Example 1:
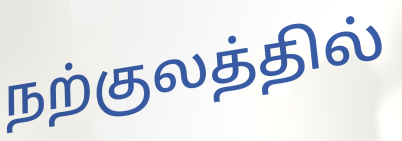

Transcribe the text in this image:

நற்குலத்தில்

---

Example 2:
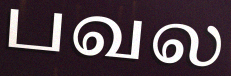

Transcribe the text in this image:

பவல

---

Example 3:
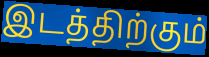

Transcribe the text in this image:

இடத்திற்கும்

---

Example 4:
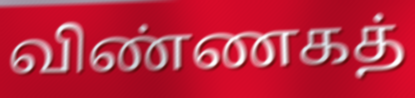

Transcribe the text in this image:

விண்ணகத்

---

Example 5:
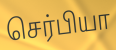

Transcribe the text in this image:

செர்பியா